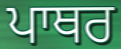
ਪਾਥਰ